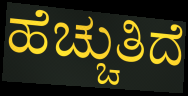
ಹೆಚ್ಚುತಿದೆ